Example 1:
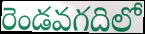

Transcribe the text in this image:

రెండవగదిలో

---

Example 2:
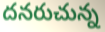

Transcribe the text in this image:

దనరుచున్న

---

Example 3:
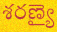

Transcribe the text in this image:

శరణ్యై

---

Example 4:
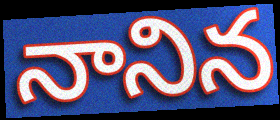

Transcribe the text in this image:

నానిన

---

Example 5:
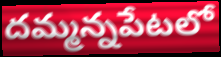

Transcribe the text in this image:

దమ్మన్నపేటలో